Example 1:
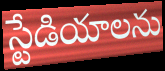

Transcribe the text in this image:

స్టేడియాలను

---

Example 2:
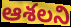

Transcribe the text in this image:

ఆశలని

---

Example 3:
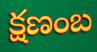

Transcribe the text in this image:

క్షణంబ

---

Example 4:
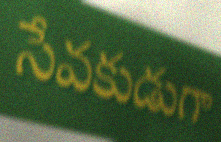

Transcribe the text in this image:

సేవకుడుగా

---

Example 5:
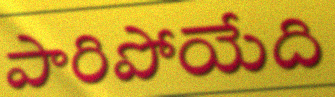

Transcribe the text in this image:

పారిపోయేది